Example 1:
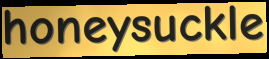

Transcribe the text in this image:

honeysuckle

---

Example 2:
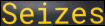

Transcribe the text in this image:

Seizes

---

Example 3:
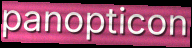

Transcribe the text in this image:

panopticon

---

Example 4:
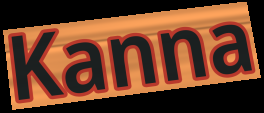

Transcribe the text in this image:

Kanna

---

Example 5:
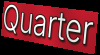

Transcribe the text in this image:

Quarter